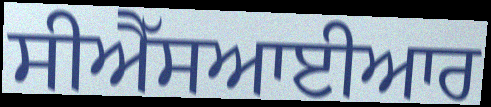
ਸੀਐੱਸਆਈਆਰ